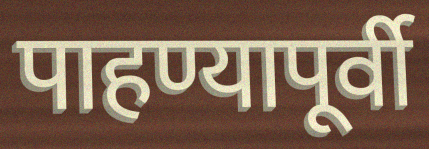
पाहण्यापूर्वी